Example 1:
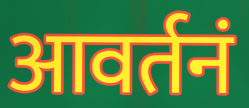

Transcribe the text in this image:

आवर्तनं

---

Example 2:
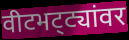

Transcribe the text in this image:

वीटभट्ट्यांवर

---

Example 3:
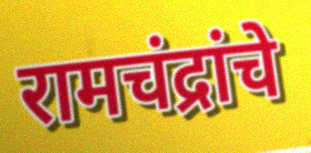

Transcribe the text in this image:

रामचंद्रांचे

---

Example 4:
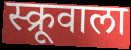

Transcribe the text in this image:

स्क्रूवाला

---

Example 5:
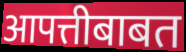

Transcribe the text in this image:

आपत्तीबाबत